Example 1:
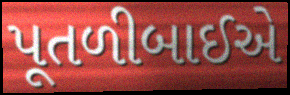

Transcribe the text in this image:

પૂતળીબાઈએ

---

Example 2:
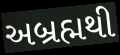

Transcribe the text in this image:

અબ્રહ્મથી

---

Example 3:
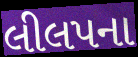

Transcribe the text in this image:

લીલપના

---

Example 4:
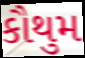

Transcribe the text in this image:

કૌથુમ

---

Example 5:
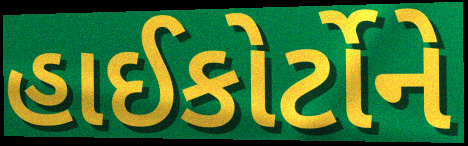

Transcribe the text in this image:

હાઈકોર્ટોને